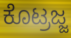
ಕೊಟ್ರಜ್ಜ